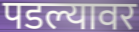
पडल्यावर